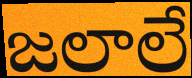
జలాలే